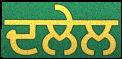
ਦਲੇਲ